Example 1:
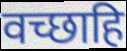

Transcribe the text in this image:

वच्छाहि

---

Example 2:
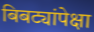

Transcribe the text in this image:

बिबट्यांपेक्षा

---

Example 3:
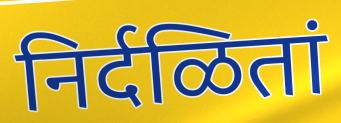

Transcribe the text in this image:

निर्दळितां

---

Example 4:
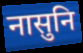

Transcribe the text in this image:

नासुनि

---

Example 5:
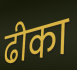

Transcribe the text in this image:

ढीका